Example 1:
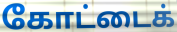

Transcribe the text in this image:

கோட்டைக்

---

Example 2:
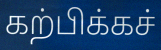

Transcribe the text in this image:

கற்பிக்கச்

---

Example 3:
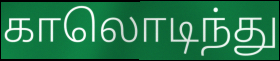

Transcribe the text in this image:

காலொடிந்து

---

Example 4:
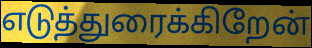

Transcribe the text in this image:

எடுத்துரைக்கிறேன்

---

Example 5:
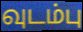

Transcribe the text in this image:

வுடம்பு